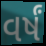
વર્ષં